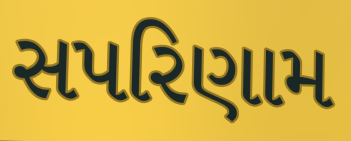
સપરિણામ